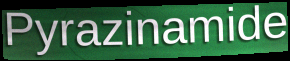
Pyrazinamide